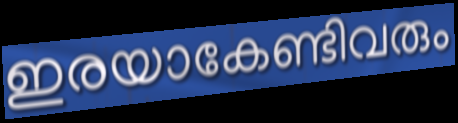
ഇരയാകേണ്ടിവരും